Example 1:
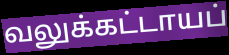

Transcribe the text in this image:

வலுக்கட்டாயப்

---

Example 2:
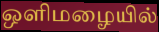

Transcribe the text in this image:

ஒளிமழையில்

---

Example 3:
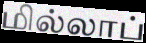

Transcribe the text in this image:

மில்லாப்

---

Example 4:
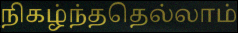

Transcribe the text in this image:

நிகழ்ந்ததெல்லாம்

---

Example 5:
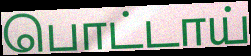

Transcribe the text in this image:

பொட்டாய்